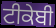
ਟੀਕੇਬੀ